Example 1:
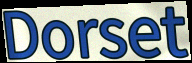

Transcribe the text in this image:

Dorset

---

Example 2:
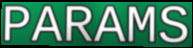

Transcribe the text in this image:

PARAMS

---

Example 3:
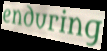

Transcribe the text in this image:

enduring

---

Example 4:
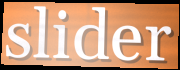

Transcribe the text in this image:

slider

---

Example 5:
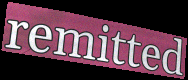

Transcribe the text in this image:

remitted